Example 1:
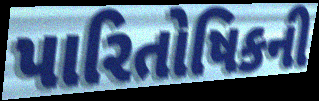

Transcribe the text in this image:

પારિતોષિકની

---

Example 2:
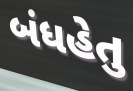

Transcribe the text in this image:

બંધહેતુ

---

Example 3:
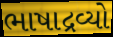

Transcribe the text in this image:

ભાષાદ્રવ્યો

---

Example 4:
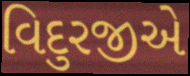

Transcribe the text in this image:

વિદુરજીએ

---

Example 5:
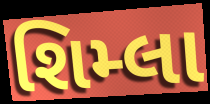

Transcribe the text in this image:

શિમ્લા